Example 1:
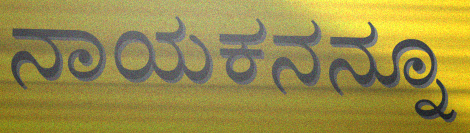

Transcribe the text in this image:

ನಾಯಕನನ್ನೂ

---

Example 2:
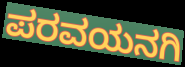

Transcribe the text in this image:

ಪರವಯನಗಿ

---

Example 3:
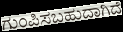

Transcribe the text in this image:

ಗುಂಪಿಸಬಹುದಾಗಿದೆ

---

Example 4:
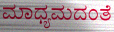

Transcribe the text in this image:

ಮಾಧ್ಯಮದಂತೆ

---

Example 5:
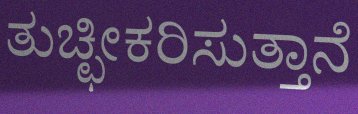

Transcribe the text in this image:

ತುಚ್ಛೀಕರಿಸುತ್ತಾನೆ